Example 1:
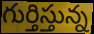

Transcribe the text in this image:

గుర్తిస్తున్న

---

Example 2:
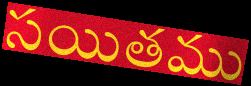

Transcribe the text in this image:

సయితము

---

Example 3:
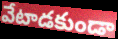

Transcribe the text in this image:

వేటాడకుండా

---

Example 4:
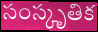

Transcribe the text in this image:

సంస్కృతిక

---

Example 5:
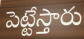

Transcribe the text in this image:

పెట్టేస్తారు